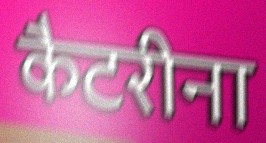
कैटरीना